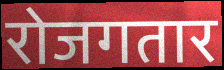
रोजगतार